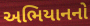
અભિયાનનો